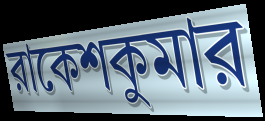
রাকেশকুমার